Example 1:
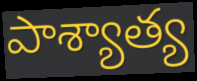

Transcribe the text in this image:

పాశ్యాత్య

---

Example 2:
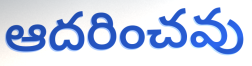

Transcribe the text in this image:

ఆదరించవు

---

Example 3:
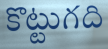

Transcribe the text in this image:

కొట్టుగది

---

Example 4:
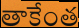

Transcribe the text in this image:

తాకేంత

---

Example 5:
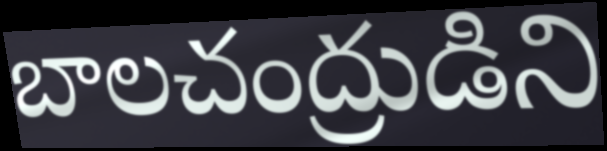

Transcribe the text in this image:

బాలచంద్రుడిని